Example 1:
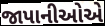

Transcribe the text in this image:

જાપાનીઓએ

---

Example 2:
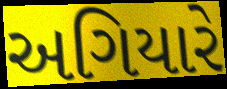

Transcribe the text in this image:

અગિયારે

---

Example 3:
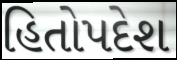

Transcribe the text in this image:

હિતોપદેશ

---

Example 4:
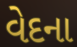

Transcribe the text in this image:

વેદના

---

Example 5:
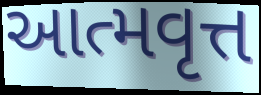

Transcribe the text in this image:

આત્મવૃત્ત